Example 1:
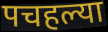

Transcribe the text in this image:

पचहल्या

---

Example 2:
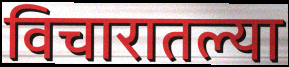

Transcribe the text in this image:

विचारातल्या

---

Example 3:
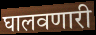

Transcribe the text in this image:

घालवणारी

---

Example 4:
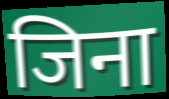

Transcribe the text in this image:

जिना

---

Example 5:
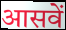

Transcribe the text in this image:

आसवें